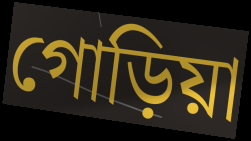
গোড়িয়া